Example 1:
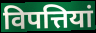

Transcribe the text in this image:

विपत्तियां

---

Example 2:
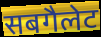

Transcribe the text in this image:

सबगैलेट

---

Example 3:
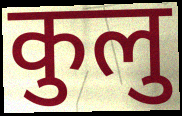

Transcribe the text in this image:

कुलु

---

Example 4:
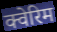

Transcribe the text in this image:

क्वेरिम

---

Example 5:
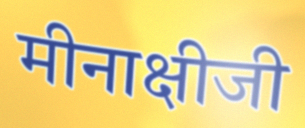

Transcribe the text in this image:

मीनाक्षीजी